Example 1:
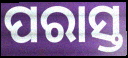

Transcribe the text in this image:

ପରାସ୍ତ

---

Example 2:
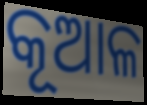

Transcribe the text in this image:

କୂଆଳ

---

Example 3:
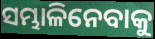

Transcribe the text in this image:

ସମ୍ଭାଳିନେବାକୁ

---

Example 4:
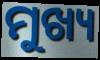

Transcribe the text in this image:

ମୁଖ୍ୟ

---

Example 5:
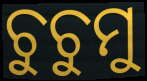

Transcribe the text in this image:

ଚୁଚୁମୁ